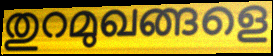
തുറമുഖങ്ങളെ